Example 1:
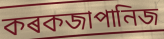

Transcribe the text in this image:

কৰকজাপানিজ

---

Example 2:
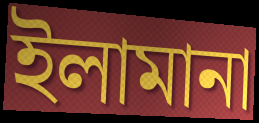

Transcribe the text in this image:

ইলামানা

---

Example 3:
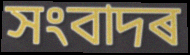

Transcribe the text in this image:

সংবাদৰ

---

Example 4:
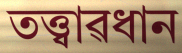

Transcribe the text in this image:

তত্ত্বাৱধান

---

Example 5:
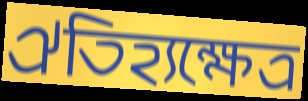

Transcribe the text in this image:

ঐতিহ্যক্ষেত্ৰ